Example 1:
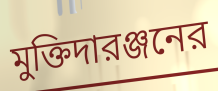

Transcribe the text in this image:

মুক্তিদারঞ্জনের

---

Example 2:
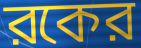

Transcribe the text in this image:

রকের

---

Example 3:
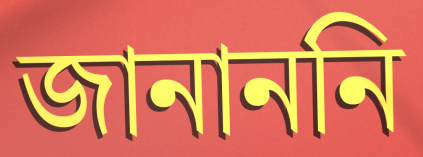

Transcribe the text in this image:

জানাননি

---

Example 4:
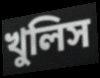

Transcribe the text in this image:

খুলিস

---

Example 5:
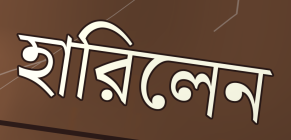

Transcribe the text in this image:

হারিলেন